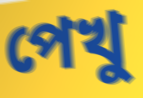
পেখু